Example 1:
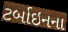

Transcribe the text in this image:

ટર્બાઇનના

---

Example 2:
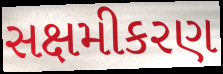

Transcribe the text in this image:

સક્ષમીકરણ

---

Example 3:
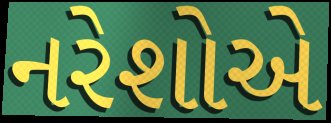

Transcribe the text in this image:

નરેશોએ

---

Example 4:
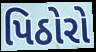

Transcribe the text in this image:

પિઠોરો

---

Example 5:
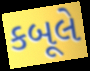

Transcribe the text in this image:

કબૂલે